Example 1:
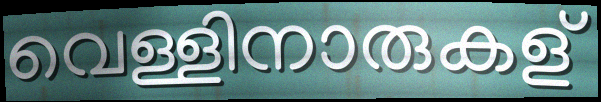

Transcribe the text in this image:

വെള്ളിനാരുകള്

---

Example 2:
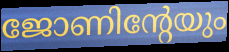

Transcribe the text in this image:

ജോണിന്റേയും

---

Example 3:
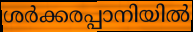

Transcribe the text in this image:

ശർക്കരപ്പാനിയിൽ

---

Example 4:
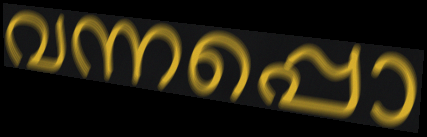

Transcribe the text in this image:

വന്നപ്പൊ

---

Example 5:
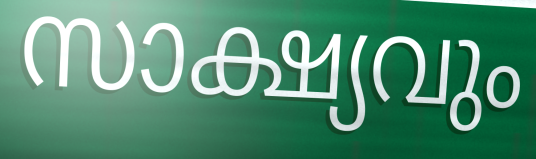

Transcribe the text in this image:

സാക്ഷ്യവും